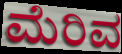
ಮೆರಿವ